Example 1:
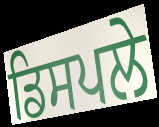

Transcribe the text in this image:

ਡਿਸਪਲੇ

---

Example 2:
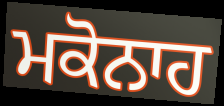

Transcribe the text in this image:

ਮਕੋਨਾਹ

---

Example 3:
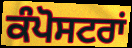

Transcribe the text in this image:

ਕੰਪੋਸਟਰਾਂ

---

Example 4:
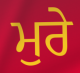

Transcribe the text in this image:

ਮੁਰੇ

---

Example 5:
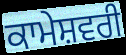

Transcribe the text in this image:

ਕਾਮੇਸ਼ਵਰੀ